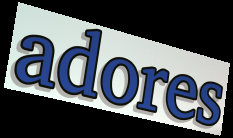
adores